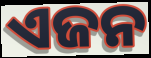
ଏଜନ